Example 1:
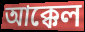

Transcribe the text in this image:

আক্কেল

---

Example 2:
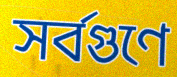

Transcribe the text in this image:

সর্বগুণে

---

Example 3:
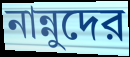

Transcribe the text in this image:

নান্নুদের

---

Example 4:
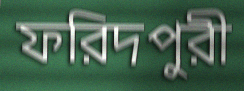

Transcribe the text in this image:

ফরিদপুরী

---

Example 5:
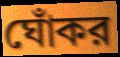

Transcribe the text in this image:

ঘোঁকর